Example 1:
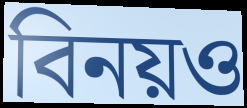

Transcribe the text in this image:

বিনয়ও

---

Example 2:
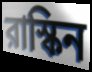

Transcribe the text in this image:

রাস্কিন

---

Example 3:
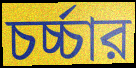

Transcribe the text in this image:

চর্চ্চার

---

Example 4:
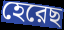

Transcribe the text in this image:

হেরেছ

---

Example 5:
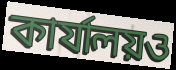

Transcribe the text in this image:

কার্যালয়ও